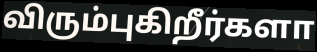
விரும்புகிறீர்களா